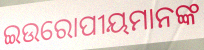
ଇଉରୋପୀୟମାନଙ୍କ